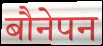
बौनेपन